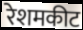
रेशमकीट